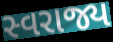
સ્વરાજ્ય